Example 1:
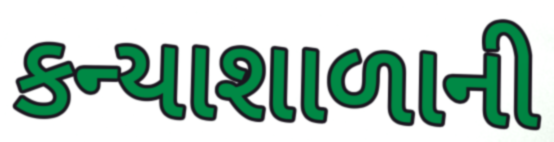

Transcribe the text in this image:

કન્યાશાળાની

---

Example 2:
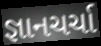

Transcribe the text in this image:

જ્ઞાનચર્ચા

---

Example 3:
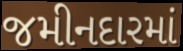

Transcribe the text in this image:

જમીનદારમાં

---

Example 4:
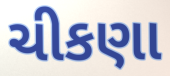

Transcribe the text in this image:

ચીકણા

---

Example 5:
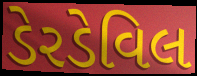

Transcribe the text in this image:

ડેરડેવિલ